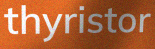
thyristor